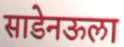
साडेनऊला